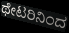
ಥೇಟರಿನಿಂದ